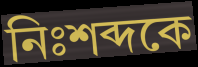
নিঃশব্দকে